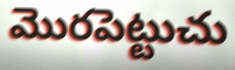
మొరపెట్టుచు